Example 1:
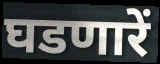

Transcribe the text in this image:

घडणारें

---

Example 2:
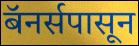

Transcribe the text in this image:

बॅनर्सपासून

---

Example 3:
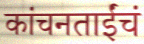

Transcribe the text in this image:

कांचनताईंचं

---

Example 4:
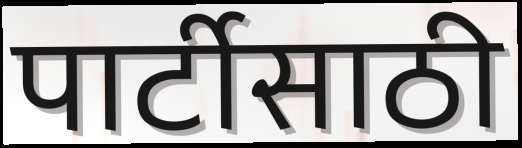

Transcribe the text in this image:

पार्टीसाठी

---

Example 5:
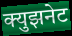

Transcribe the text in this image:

क्युझनेट